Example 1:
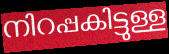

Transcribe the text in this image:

നിറപ്പകിട്ടുള്ള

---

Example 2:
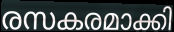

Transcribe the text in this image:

രസകരമാക്കി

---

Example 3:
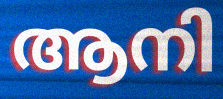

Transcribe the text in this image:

ആനി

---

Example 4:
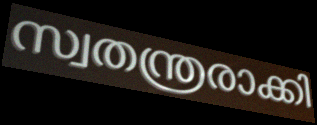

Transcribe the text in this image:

സ്വതന്ത്രരാക്കി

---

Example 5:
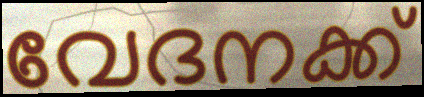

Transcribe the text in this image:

വേദനക്ക്